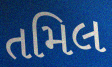
તમિલ